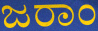
ಜರಾಂ